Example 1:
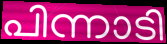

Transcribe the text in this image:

പിന്നാടി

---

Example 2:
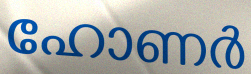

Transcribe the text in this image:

ഹോണർ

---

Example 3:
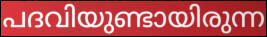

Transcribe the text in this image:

പദവിയുണ്ടായിരുന്ന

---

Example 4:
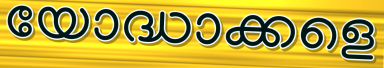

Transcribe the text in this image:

യോദ്ധാക്കളെ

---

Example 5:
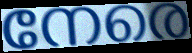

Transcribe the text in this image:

നേരെ